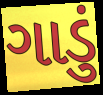
ગાડું